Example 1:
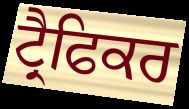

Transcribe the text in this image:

ਟ੍ਰੈਫਿਕਰ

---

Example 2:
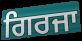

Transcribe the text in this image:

ਗਿਰਜਾ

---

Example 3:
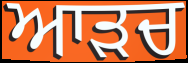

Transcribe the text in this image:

ਆੜਚ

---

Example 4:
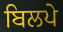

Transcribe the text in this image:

ਬਿਲਪੇ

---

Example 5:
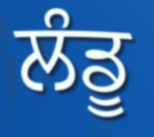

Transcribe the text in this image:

ਲੰਡੂ